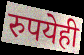
रुपयेही